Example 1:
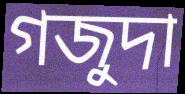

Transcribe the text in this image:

গজুদা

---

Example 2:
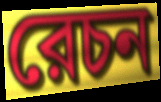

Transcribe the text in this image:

রেচন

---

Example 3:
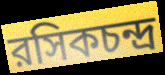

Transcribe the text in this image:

রসিকচন্দ্র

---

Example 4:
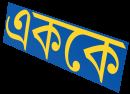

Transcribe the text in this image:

এককে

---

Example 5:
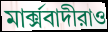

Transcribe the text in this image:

মার্ক্সবাদীরাও